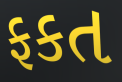
ફકત